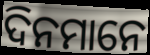
ଦିନମାନେ